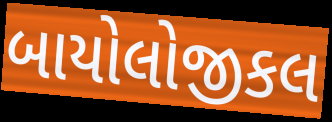
બાયોલોજીકલ